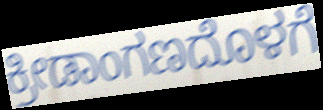
ಕ್ರೀಡಾಂಗಣದೊಳಗೆ